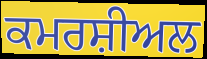
ਕਮਰਸ਼ੀਅਲ